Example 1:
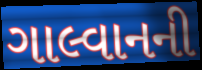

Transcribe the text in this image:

ગાલ્વાનની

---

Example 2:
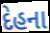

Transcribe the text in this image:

દેહના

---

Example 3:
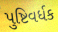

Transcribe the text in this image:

પુષ્ટિવર્ધક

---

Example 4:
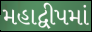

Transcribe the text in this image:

મહાદ્વીપમાં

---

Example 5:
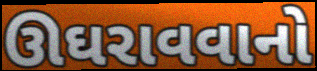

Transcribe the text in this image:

ઊઘરાવવાનો